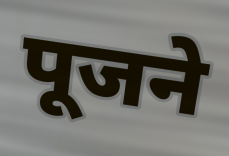
पूजने